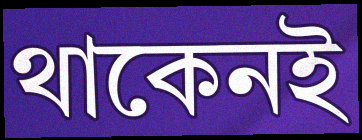
থাকেনই